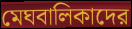
মেঘবালিকাদের